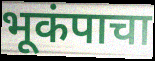
भूकंपाचा